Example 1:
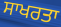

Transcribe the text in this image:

ਸਾਖਰਤਾ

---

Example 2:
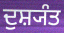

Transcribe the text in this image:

ਦੁਸ਼੍ਯੰਤ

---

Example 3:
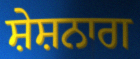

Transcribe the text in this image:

ਸ਼ੇਸ਼ਨਾਗ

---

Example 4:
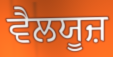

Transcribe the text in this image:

ਵੈਲਯੂਜ਼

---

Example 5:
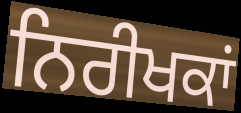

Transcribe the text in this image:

ਨਿਰੀਖਕਾਂ